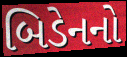
બિડેનનો